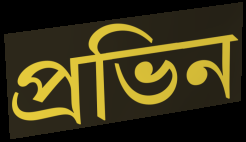
প্রভিন